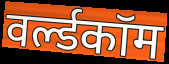
वर्ल्डकॉम